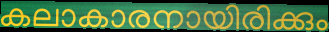
കലാകാരനായിരിക്കും